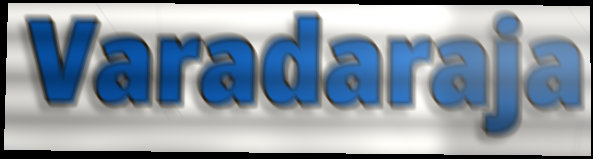
Varadaraja